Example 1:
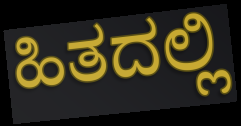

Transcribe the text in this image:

ಹಿತದಲ್ಲಿ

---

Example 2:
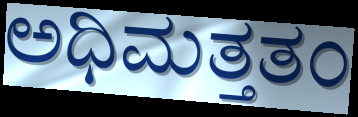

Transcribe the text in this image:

ಅಧಿಮತ್ತತಂ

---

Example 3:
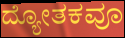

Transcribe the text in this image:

ದ್ಯೋತಕವೂ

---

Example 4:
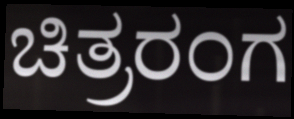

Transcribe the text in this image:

ಚಿತ್ರರಂಗ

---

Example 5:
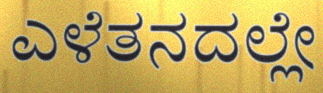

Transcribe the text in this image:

ಎಳೆತನದಲ್ಲೇ